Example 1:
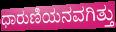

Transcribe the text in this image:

ಧಾರುಣಿಯನವಗಿತ್ತು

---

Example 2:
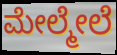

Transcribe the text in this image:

ಮೇಲ್ಮೇಲೆ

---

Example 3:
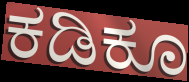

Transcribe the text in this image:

ಕಡಿಕೂ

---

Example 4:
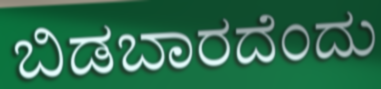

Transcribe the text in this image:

ಬಿಡಬಾರದೆಂದು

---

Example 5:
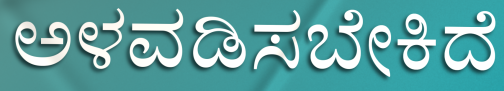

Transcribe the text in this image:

ಅಳವಡಿಸಬೇಕಿದೆ